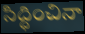
సిద్ధించినా